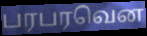
பரபரவென